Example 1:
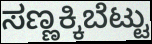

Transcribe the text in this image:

ಸಣ್ಣಕ್ಕಿಬೆಟ್ಟು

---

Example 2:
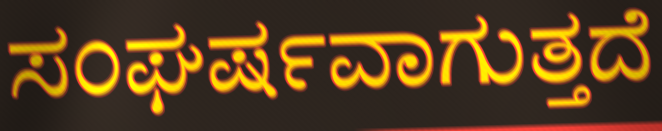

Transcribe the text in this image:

ಸಂಘರ್ಷವಾಗುತ್ತದೆ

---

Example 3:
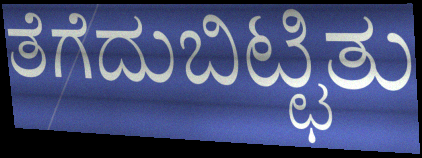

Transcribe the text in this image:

ತೆಗೆದುಬಿಟ್ಟಿತು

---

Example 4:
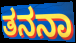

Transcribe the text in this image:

ತನನಾ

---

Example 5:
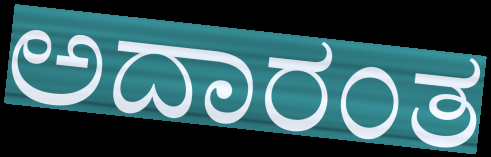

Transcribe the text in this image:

ಅದಾರಂತ